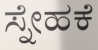
ಸ್ನೇಹಕೆ